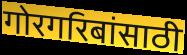
गोरगरिबांसाठी